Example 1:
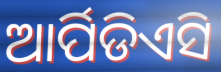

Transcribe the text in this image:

ଆର୍ପିଡିଏସି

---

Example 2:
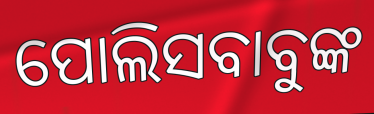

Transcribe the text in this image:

ପୋଲିସବାବୁଙ୍କ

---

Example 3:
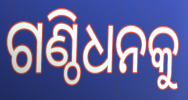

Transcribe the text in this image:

ଗଣ୍ଠିଧନକୁ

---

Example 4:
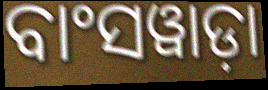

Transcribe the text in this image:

ବାଂସୱାଡ଼ା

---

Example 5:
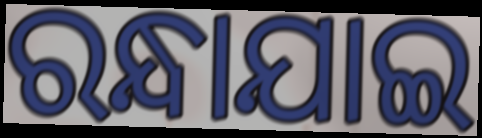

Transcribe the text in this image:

ରନ୍ଧାଯାଇ